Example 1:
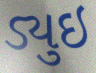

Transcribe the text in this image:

ડ્યુઇ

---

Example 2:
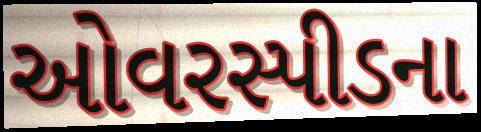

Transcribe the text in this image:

ઓવરસ્પીડના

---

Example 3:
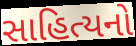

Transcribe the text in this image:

સાહિત્યનો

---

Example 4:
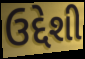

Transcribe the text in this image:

ઉદ્દેશી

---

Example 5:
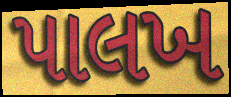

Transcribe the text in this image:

પાલખ